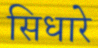
सिधारे